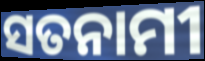
ସତନାମୀ